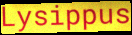
Lysippus